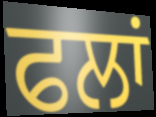
ਫਲਾਂ